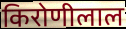
किरोणीलाल